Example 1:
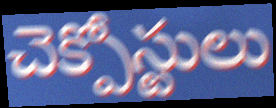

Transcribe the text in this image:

చెక్పోస్టులు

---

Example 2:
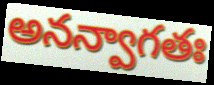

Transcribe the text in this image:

అనన్వాగతః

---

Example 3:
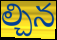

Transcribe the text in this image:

ల్చిన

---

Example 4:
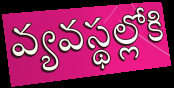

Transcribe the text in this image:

వ్యవస్థల్లోకి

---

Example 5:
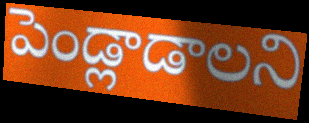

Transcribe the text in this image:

పెండ్లాడాలని